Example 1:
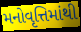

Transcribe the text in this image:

મનોવૃત્તિમાંથી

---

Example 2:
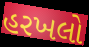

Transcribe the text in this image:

હરખલો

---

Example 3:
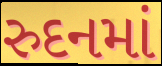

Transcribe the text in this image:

રુદનમાં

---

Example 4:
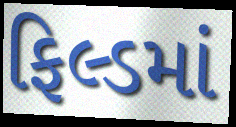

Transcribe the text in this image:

ફિલ્ડમાં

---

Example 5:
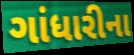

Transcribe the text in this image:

ગાંધારીના